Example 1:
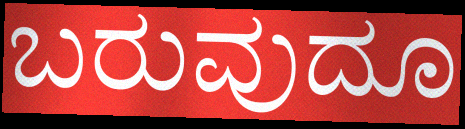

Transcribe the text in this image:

ಬರುವುದೂ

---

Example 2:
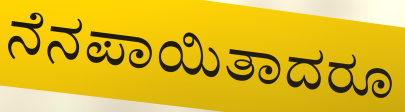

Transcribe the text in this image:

ನೆನಪಾಯಿತಾದರೂ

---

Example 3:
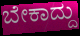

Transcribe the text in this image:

ಬೇಕಾದ್ದು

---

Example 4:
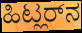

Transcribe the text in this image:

ಹಿಟ್ಲರ್‌ನ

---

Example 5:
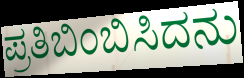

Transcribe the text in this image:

ಪ್ರತಿಬಿಂಬಿಸಿದನು